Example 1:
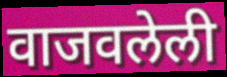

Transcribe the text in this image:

वाजवलेली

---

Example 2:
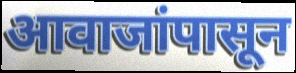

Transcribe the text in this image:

आवाजांपासून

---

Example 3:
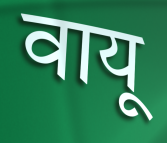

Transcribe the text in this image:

वायू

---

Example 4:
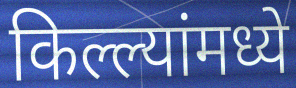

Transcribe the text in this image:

किल्ल्यांमध्ये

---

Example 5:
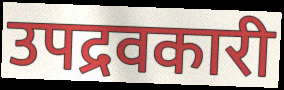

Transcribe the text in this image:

उपद्रवकारी